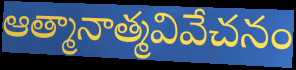
ఆత్మానాత్మవివేచనం